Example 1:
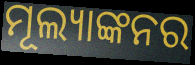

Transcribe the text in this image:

ମୂଲ୍ୟାଙ୍କନର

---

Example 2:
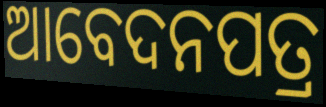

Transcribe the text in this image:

ଆବେଦନପତ୍ର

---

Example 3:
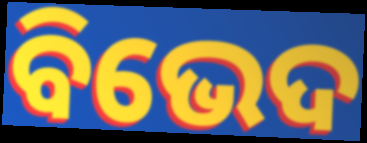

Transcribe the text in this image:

ବିଭେଦ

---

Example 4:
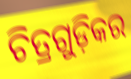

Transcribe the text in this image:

ଚିତ୍ରଗୁଡ଼ିକର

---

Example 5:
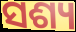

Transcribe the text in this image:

ସଶ୍ୟ